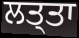
ਲਤ੍ਤਾ